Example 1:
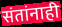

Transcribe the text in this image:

संतांनाही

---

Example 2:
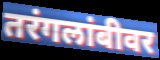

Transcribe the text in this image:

तरंगलांबीवर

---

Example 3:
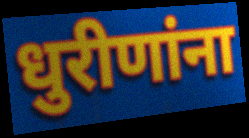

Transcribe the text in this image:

धुरीणांना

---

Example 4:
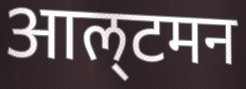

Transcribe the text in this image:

आल्टमन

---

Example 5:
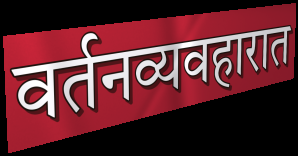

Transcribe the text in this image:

वर्तनव्यवहारात